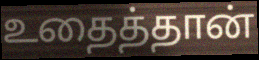
உதைத்தான்